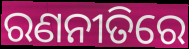
ରଣନୀତିରେ